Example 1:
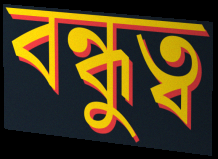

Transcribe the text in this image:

বন্ধুত্ব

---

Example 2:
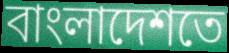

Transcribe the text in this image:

বাংলাদেশতে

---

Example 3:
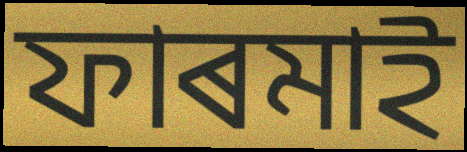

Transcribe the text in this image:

ফাৰমাই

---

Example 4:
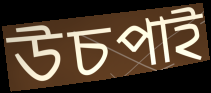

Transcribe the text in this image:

উচপাই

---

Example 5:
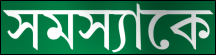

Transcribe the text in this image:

সমস্যাকে